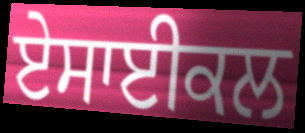
ਏਸਾਈਕਲ